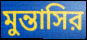
মুন্তাসির